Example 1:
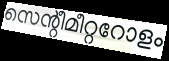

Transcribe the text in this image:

സെന്റീമീറ്ററോളം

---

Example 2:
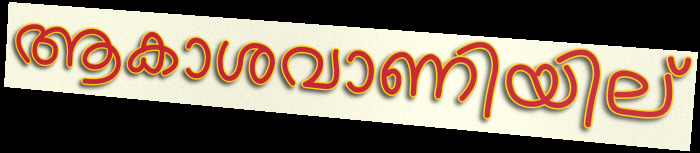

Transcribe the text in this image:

ആകാശവാണിയില്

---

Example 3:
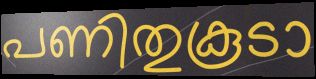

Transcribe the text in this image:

പണിതുകൂടാ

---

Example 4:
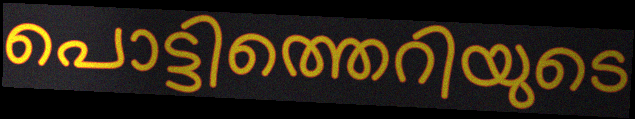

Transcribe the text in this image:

പൊട്ടിത്തെറിയുടെ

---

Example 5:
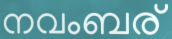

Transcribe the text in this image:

നവംബര്